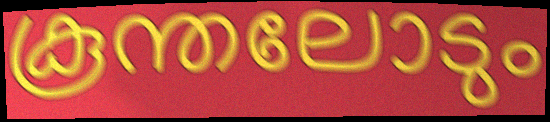
കൂന്തലോടും